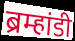
ब्रम्हांडी